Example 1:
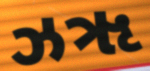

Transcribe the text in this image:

ઝૠ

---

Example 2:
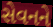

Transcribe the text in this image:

સેવનને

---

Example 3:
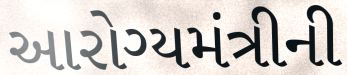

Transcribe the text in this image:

આરોગ્યમંત્રીની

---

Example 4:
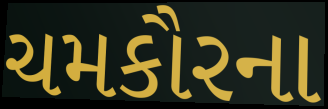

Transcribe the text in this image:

ચમકૌરના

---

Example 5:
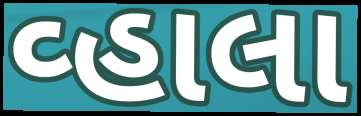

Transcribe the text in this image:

વ્હાલા